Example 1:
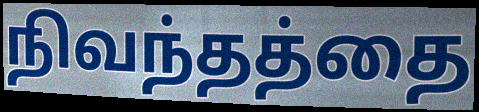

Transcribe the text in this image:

நிவந்தத்தை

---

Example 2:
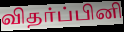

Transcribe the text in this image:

விதர்ப்பினி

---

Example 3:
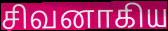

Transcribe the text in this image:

சிவனாகிய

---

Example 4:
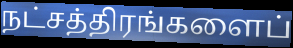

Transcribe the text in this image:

நட்சத்திரங்களைப்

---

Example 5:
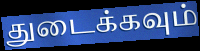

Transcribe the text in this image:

துடைக்கவும்